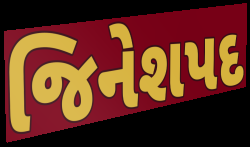
જિનેશપદ